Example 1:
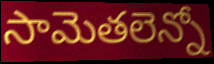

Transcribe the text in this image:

సామెతలెన్నో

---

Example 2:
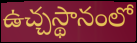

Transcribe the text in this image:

ఉచ్చస్థానంలో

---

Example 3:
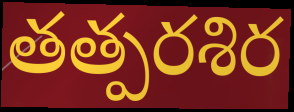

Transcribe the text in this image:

తత్పరశిర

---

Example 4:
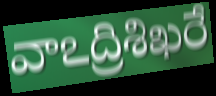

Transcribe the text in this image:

వాఽద్రిశిఖరే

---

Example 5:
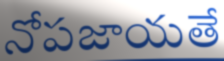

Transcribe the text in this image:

నోపజాయతే